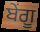
ਬੇਂਗੂ